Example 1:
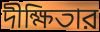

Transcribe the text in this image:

দীক্ষিতার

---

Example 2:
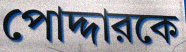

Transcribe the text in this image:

পোদ্দারকে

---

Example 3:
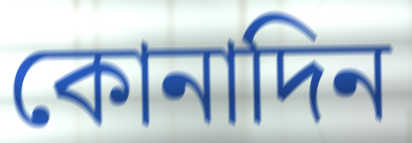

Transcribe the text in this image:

কোনাদিন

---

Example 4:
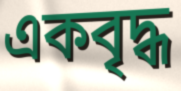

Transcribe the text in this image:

একবৃদ্ধ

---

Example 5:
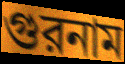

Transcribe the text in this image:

গুরনাম